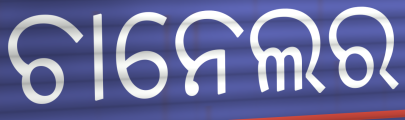
ଚାନେଲର